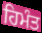
ਹਿਮੰਤ